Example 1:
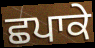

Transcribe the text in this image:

ਛਪਾਕੇ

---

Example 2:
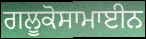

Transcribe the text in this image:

ਗਲੂਕੋਸਾਮਾਈਨ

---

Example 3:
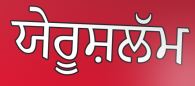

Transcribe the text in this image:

ਯੇਰੂਸ਼ਲੱਮ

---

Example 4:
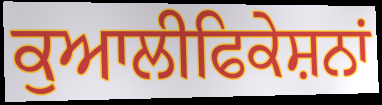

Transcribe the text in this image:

ਕੁਆਲੀਫਿਕੇਸ਼ਨਾਂ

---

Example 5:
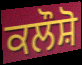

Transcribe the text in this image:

ਕਲੌਸ਼ੋ